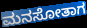
ಮನಸೋತಾಗ